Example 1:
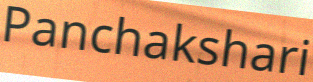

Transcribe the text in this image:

Panchakshari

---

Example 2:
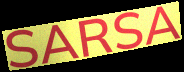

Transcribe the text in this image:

SARSA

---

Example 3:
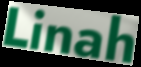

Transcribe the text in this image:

Linah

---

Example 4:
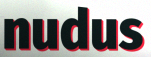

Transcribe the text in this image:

nudus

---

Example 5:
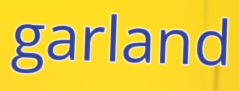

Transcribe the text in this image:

garland